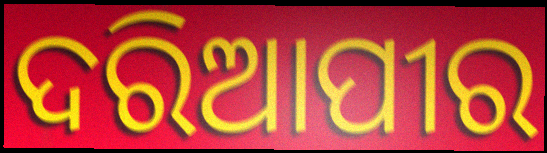
ଦରିଆପୀର